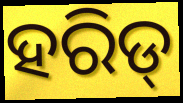
ହରିଡ୍